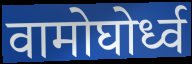
वामोघोर्ध्व